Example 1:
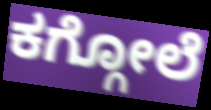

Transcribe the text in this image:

ಕಗ್ಗೋಲೆ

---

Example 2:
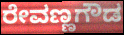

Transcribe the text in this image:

ರೇವಣ್ಣಗೌಡ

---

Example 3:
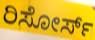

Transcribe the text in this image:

ರಿಸೋರ್ಸ್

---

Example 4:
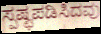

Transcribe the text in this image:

ಸ್ಪಷ್ಟಪಡಿಸಿದವು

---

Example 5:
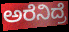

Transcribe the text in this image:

ಅರೆನಿದ್ರೆ